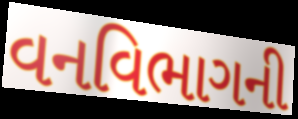
વનવિભાગની